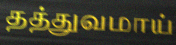
தத்துவமாய்